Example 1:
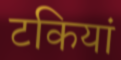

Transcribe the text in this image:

टकियां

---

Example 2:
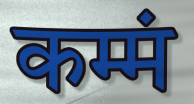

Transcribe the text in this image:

कम्मं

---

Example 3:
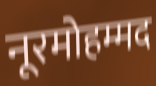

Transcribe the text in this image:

नूरमोहम्मद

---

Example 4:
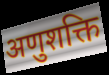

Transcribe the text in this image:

अणुशक्ति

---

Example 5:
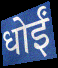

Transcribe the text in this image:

धोईं